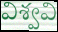
విశ్వవి